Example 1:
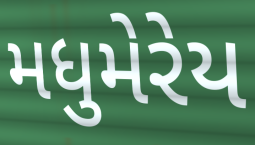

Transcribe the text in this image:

મધુમેરેય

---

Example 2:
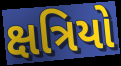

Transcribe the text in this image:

ક્ષત્રિયો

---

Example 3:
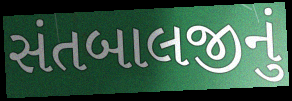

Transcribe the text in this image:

સંતબાલજીનું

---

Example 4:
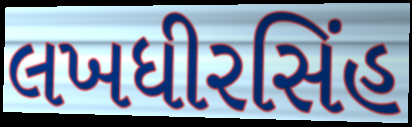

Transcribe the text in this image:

લખધીરસિંહ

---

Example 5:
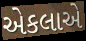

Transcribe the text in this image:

એકલાએ